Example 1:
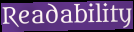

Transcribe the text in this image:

Readability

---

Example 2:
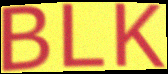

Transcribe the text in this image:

BLK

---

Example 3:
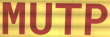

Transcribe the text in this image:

MUTP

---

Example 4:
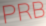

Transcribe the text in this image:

PRB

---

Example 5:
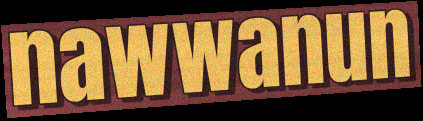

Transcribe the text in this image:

nawwanun